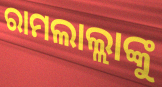
ରାମଲାଲ୍ଲାଙ୍କୁ